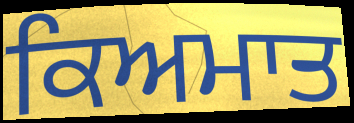
ਕਿਅਮਾਤ